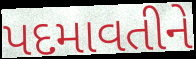
પદમાવતીને